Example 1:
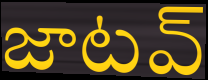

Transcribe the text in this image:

జాటవ్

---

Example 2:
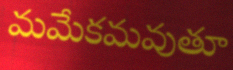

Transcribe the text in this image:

మమేకమవుతూ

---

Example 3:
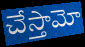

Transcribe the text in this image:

చేస్తామో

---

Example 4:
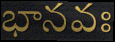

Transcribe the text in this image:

భానవః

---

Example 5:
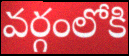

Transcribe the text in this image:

వర్గంలోకి